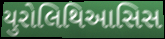
યુરોલિથિઆસિસ